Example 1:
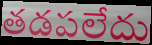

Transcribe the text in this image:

తడపలేదు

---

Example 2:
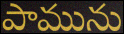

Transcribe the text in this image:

పామును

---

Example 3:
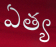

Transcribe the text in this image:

ఏత్య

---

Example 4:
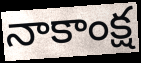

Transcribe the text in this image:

నాకాంక్ష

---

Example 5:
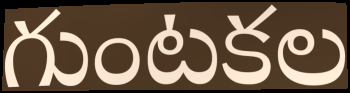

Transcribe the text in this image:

గుంటకల